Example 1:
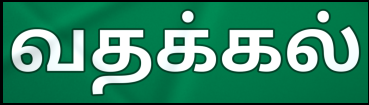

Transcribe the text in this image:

வதக்கல்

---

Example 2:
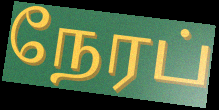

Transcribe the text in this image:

நேரப்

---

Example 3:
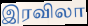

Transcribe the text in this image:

இரவிலா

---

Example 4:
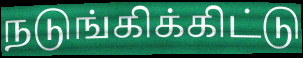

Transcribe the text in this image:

நடுங்கிக்கிட்டு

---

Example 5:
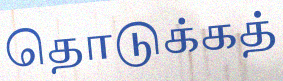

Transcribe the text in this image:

தொடுக்கத்